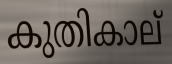
കുതികാല്